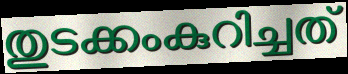
തുടക്കംകുറിച്ചത്